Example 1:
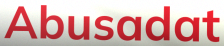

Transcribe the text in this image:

Abusadat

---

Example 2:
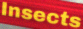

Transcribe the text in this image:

Insects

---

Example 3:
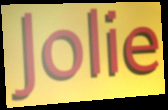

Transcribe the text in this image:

Jolie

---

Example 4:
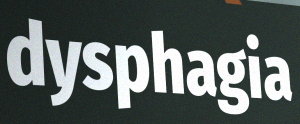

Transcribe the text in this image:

dysphagia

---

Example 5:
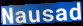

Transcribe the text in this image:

Nausad